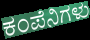
ಕಂಪೆನಿಗಳು